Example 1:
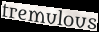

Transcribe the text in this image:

tremulous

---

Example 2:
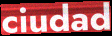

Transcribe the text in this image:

ciudad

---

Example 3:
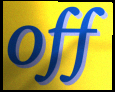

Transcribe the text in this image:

off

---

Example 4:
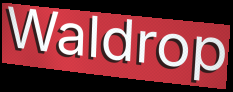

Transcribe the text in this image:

Waldrop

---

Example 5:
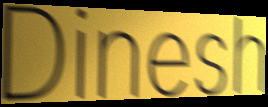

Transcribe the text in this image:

Dinesh